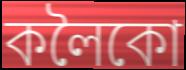
কলৈকো